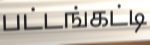
பட்டங்கட்டி